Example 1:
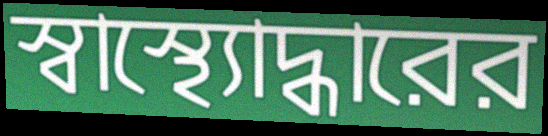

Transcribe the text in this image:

স্বাস্থ্যোদ্ধারের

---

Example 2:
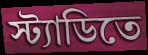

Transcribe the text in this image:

স্ট্যাডিতে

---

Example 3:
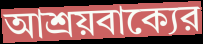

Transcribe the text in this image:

আশ্রয়বাক্যের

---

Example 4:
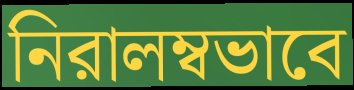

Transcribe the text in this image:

নিরালম্বভাবে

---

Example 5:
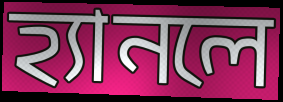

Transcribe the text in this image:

হ্যানলে